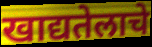
खाद्यतेलाचे